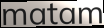
matam